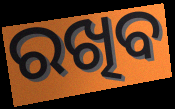
ରଖିବ